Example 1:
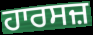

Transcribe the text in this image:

ਹਾਰਸਜ਼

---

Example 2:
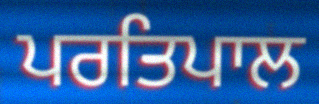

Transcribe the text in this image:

ਪਰਤਿਪਾਲ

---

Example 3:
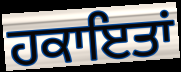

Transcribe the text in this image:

ਹਕਾਇਤਾਂ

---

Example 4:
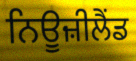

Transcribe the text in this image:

ਨਿਊਜ਼ੀਲੈੰਡ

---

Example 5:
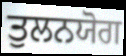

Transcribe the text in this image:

ਤੁਲਨਯੋਗ